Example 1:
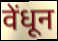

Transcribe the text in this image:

वेंधून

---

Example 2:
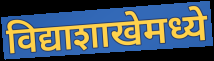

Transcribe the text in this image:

विद्याशाखेमध्ये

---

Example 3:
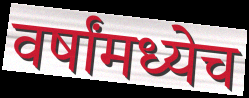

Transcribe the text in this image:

वर्षांमध्येच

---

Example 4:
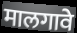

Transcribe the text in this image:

मालगावे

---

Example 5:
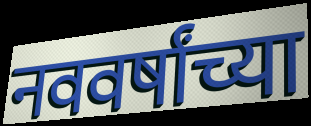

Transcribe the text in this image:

नववर्षांच्या